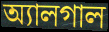
অ্যালগাল